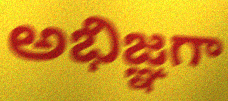
అభిజ్ఞగా